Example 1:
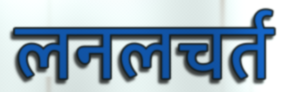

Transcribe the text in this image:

लनलचर्त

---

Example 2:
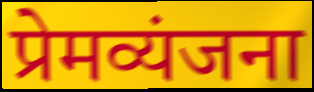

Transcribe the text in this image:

प्रेमव्यंजना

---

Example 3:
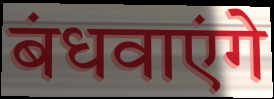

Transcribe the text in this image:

बंधवाएंगे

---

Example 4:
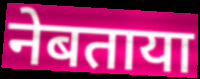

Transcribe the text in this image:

नेबताया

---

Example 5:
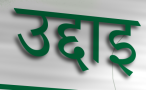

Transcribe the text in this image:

उद्दाइ